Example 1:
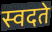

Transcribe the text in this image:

स्वदते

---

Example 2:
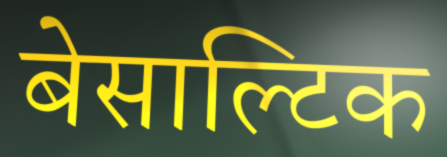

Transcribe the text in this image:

बेसाल्टिक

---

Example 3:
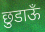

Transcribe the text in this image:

छुडाऊँ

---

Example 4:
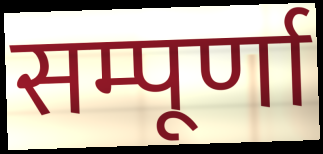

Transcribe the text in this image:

सम्पूर्णा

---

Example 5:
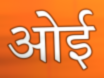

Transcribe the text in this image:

ओई